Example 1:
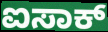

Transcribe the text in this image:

ಐಸಾಕ್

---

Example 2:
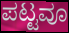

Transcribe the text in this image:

ಪಟ್ಟವೂ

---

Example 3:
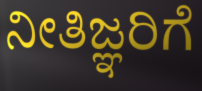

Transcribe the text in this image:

ನೀತಿಜ್ಞರಿಗೆ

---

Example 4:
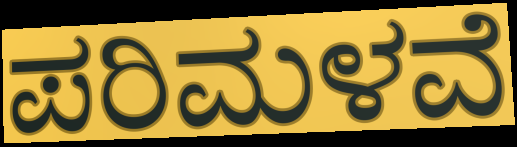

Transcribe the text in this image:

ಪರಿಮಳವೆ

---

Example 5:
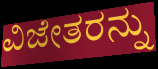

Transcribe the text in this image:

ವಿಜೇತರನ್ನು